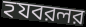
হযবরলর